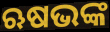
ଋଷଭଙ୍କ